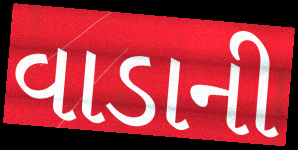
વાડાની